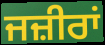
ਜਜ਼ੀਰਾਂ